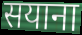
सयाना